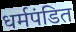
धर्मपंडित